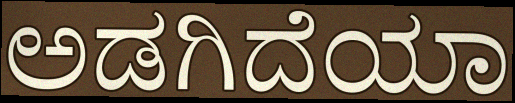
ಅಡಗಿದೆಯಾ